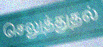
செலுத்துதல்